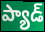
ప్యాడ్